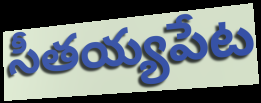
సీతయ్యపేట